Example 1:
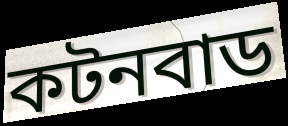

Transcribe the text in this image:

কটনবাড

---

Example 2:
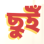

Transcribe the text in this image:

ছুইঁ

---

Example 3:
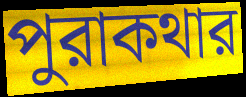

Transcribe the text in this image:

পুরাকথার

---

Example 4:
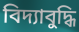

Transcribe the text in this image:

বিদ্যাবুদ্ধি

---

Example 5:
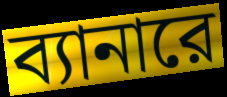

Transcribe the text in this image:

ব্যানারে